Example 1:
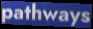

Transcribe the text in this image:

pathways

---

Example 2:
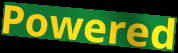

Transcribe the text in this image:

Powered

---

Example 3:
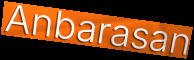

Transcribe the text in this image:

Anbarasan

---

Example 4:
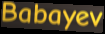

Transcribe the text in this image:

Babayev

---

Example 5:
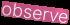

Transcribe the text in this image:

observe